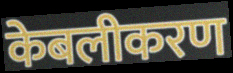
केबलीकरण